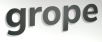
grope